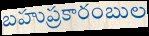
బహుప్రకారంబుల